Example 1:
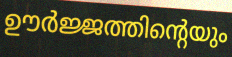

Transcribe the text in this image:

ഊർജ്ജത്തിന്റെയും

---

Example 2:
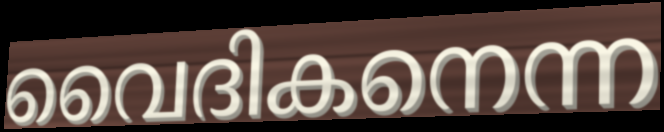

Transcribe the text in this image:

വൈദികനെന്ന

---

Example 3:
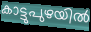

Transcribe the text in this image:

കാട്ടുപുഴയിൽ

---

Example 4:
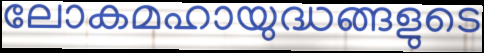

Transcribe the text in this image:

ലോകമഹായുദ്ധങ്ങളുടെ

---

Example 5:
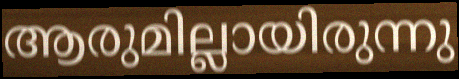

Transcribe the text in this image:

ആരുമില്ലായിരുന്നു